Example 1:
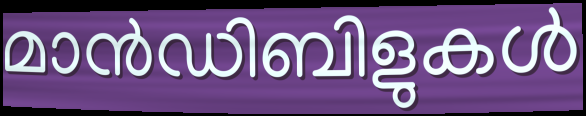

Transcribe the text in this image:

മാൻഡിബിളുകൾ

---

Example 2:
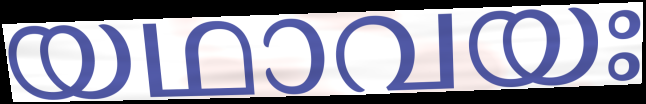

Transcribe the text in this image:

യഥാവയഃ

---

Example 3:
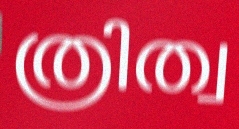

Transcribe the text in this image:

ത്രിത്വ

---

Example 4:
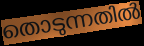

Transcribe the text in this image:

തൊടുന്നതിൽ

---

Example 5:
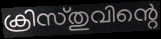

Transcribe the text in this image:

ക്രിസ്തുവിന്റെ